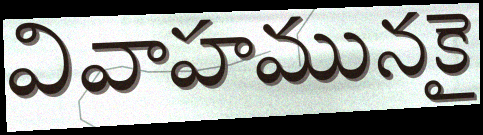
వివాహమునకై